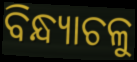
ବିନ୍ଧ୍ୟାଚଳୁ